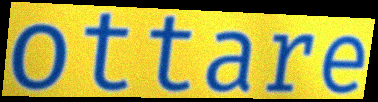
ottare